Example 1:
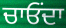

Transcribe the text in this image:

ਚਾਓਂਦਾ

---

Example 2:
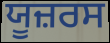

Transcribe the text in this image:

ਯੂਜ਼ਰਸ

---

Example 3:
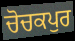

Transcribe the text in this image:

ਚੋਚਕਪੁਰ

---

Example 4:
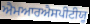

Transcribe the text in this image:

ਐਮਆਰਐਸਪੀਟੀਯੂ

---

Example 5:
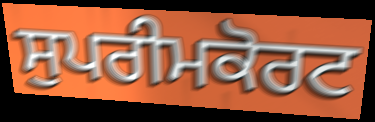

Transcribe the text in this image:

ਸੁਪਰੀਮਕੋਰਟ